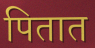
पितात